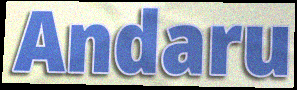
Andaru